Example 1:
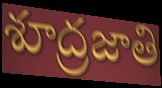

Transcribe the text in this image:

శూద్రజాతి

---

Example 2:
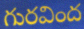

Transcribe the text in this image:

గురవింద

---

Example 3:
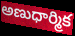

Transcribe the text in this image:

అణుధార్మిక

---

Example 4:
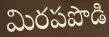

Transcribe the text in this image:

మిరపపొడి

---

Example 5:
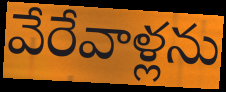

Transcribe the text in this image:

వేరేవాళ్లను